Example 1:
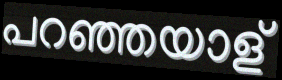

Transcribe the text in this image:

പറഞ്ഞയാള്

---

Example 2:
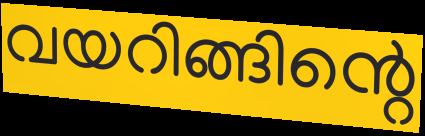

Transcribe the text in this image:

വയറിങ്ങിന്റെ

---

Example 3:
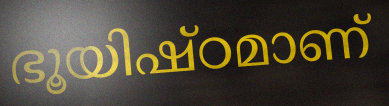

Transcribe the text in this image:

ഭൂയിഷ്ഠമാണ്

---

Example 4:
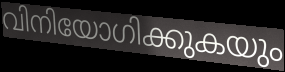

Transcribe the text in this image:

വിനിയോഗിക്കുകയും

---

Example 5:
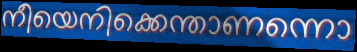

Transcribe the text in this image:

നീയെനിക്കെന്താണന്നൊ